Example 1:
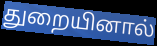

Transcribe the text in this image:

துறையினால்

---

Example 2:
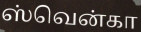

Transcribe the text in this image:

ஸ்வென்கா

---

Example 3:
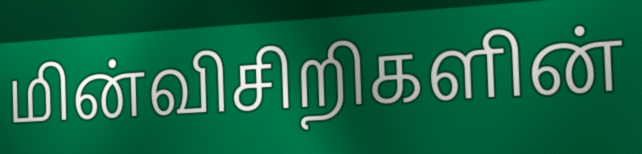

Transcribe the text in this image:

மின்விசிறிகளின்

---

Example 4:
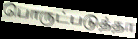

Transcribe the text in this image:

பொருட்படுத்தா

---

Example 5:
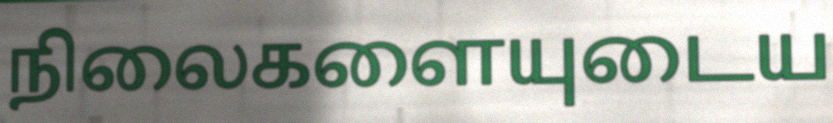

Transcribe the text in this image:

நிலைகளையுடைய